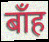
बाँह